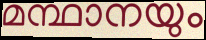
മന്ഥാനയും